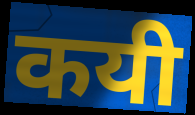
कयी